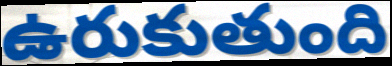
ఉరుకుతుంది